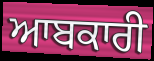
ਆਬਕਾਰੀ